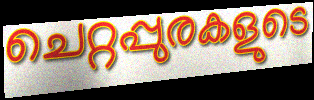
ചെറ്റപ്പുരകളുടെ